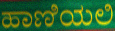
ಹಾಣಿಯಲಿ